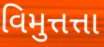
વિમુત્તત્તા